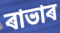
ৰাভাৰ